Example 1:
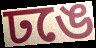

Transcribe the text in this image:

ঢঙে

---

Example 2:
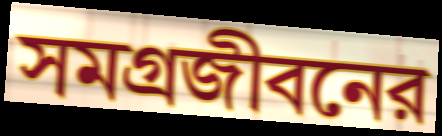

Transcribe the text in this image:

সমগ্রজীবনের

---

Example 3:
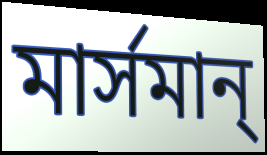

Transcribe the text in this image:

মার্সমান্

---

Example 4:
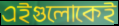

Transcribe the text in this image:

এইগুলোকেই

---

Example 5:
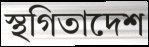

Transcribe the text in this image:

স্থগিতাদেশ